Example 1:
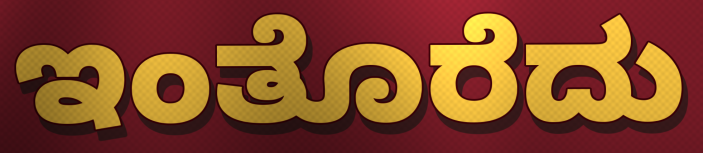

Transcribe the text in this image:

ಇಂತೊರೆದು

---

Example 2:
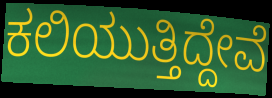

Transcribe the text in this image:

ಕಲಿಯುತ್ತಿದ್ದೇವೆ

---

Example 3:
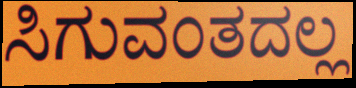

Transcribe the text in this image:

ಸಿಗುವಂತದಲ್ಲ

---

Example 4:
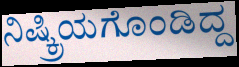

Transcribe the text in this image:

ನಿಷ್ಕ್ರಿಯಗೊಂಡಿದ್ದ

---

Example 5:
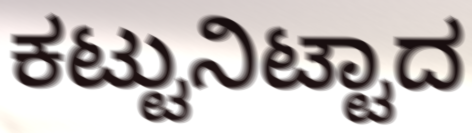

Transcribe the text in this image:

ಕಟ್ಟುನಿಟ್ಟಾದ